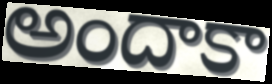
అందాకా